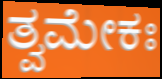
ತ್ವಮೇಕಃ